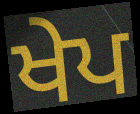
ਖੇਪ